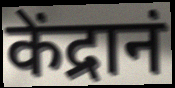
केंद्रानं